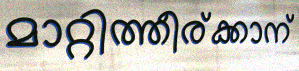
മാറ്റിത്തീര്ക്കാന്